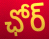
ఛోర్